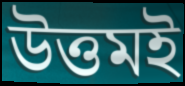
উত্তমই